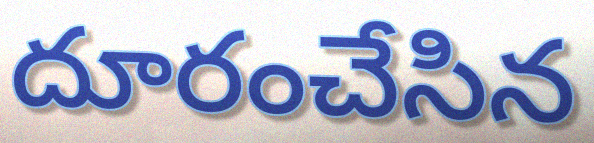
దూరంచేసిన